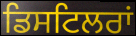
ਡਿਸਟਿਲਰਾਂ